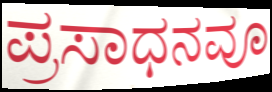
ಪ್ರಸಾಧನವೂ